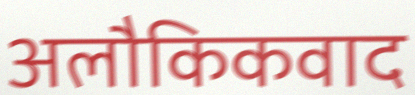
अलौकिकवाद